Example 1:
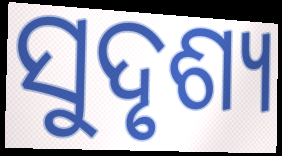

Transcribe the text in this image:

ସୁଦୃଶ୍ଯ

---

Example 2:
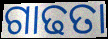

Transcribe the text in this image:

ଗାଢତା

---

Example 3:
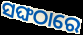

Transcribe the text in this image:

ସଙ୍ଘଠାରେ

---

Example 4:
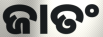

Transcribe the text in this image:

ଜାତଂ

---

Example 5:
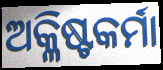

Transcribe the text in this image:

ଅକ୍ଳିଷ୍ଟକର୍ମା